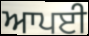
ਆਪਈ